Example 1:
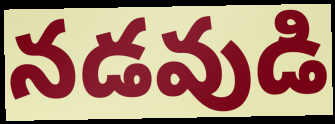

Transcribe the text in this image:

నడవుడి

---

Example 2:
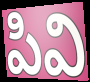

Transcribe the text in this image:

పివి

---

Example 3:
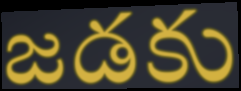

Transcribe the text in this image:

జడకు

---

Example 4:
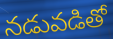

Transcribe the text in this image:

నడువడితో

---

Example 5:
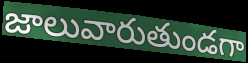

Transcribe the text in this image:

జాలువారుతుండగా